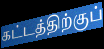
கட்டத்திற்குப்